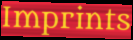
Imprints